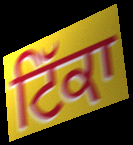
ਟਿੱਕਾ